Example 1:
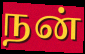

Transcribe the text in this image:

நன்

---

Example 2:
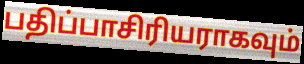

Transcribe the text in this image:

பதிப்பாசிரியராகவும்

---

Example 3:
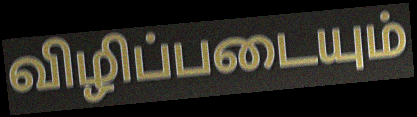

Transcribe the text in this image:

விழிப்படையும்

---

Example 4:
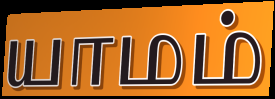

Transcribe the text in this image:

யாமம்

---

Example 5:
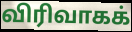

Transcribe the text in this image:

விரிவாகக்